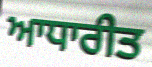
ਆਧਾਰੀਤ